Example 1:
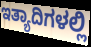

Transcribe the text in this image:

ಇತ್ಯಾದಿಗಳಲ್ಲಿ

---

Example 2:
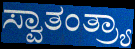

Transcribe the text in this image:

ಸ್ವಾತಂತ್ರ್ಯಾ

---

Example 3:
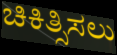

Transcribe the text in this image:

ಚಿಕಿತ್ಸಿಸಲು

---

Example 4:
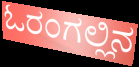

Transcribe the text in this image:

ಓರಂಗಲ್ಲಿನ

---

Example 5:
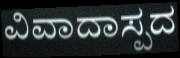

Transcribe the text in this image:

ವಿವಾದಾಸ್ಪದ